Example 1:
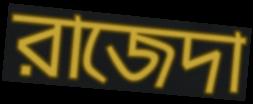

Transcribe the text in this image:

রাজেদা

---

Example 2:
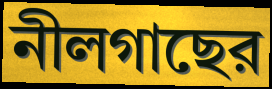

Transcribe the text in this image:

নীলগাছের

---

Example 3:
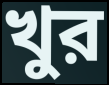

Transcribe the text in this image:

খুর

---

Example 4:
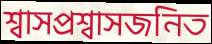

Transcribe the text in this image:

শ্বাসপ্রশ্বাসজনিত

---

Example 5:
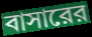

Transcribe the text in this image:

বাসারের